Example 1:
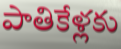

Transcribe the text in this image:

పాతికేళ్లకు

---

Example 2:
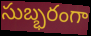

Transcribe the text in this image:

సుబ్భరంగా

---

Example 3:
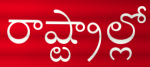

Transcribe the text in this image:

రాష్ట్రాల్లో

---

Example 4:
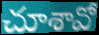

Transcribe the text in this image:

చూశావో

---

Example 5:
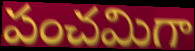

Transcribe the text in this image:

పంచమిగా